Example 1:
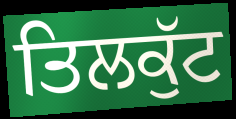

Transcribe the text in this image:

ਤਿਲਕੁੱਟ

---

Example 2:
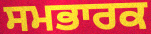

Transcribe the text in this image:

ਸਮਭਾਰਕ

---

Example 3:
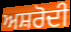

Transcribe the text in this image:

ਅਸ਼ਰੋਦੀ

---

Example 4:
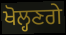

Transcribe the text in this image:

ਖੋਲ੍ਹਣਗੇ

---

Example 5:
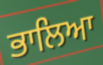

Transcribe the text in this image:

ਭਾਲਿਆ